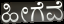
ಹೀಗೆವೆ